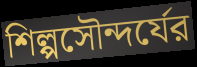
শিল্পসৌন্দর্যের